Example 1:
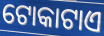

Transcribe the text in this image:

ଟୋକାଟାଏ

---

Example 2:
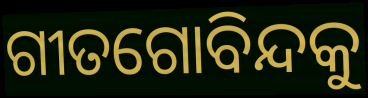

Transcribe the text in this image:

ଗୀତଗୋବିନ୍ଦକୁ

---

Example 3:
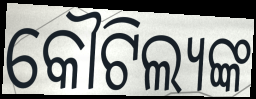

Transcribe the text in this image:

କୌଟିଲ୍ୟଙ୍କ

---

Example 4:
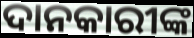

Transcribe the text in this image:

ଦାନକାରୀଙ୍କ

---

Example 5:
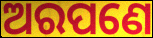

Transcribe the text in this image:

ଅରପଣେ